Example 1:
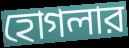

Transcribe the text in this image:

হোগলার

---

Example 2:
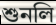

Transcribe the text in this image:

শুনলি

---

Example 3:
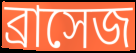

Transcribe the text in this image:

ব্রাসেজ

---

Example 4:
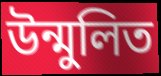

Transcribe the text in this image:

উন্মুলিত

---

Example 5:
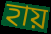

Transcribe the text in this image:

হায়